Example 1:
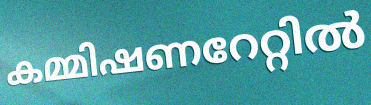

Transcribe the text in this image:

കമ്മിഷണറേറ്റിൽ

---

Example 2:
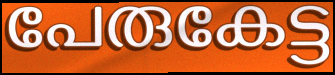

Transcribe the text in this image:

പേരുകേട്ട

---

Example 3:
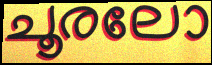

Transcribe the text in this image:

ചൂരലോ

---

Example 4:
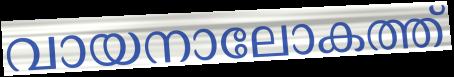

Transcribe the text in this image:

വായനാലോകത്ത്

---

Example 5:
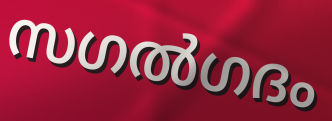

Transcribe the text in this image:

സഗൽഗദം